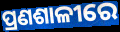
ପ୍ରଣଶାଳୀରେ